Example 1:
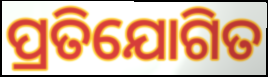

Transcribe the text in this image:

ପ୍ରତିଯୋଗିତ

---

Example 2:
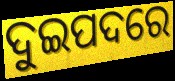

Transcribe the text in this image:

ଦୁଇପଦରେ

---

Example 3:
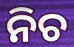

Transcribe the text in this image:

ନିଚ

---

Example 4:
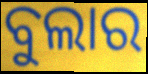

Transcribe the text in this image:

ବୁଲାର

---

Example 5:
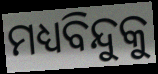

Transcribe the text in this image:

ମଧ୍ୟବିନ୍ଦୁକୁ